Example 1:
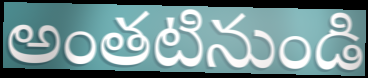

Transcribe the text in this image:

అంతటినుండి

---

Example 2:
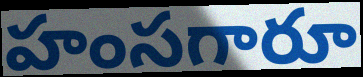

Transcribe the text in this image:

హంసగారూ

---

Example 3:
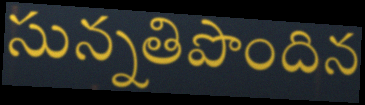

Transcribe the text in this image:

సున్నతిపొందిన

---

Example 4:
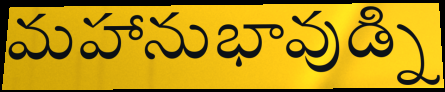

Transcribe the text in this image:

మహానుభావుడ్ని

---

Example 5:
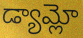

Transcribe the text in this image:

డ్యామ్లో